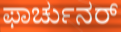
ಫಾರ್ಚುನರ್